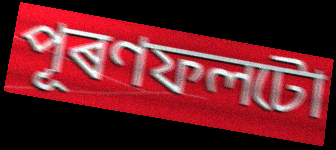
পূৰণফলটো